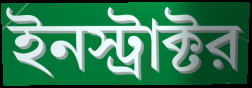
ইনস্ট্রাক্টর